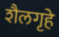
शैलगृहे